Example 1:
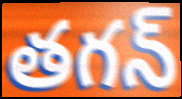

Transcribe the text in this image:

తగన్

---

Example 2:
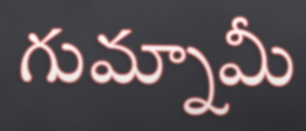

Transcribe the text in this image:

గుమ్నామీ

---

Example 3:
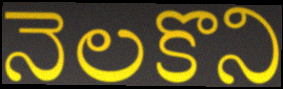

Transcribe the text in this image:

నెలకొని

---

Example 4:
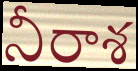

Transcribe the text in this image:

నీరాశ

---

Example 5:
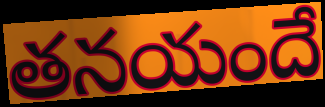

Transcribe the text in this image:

తనయందే